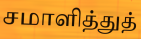
சமாளித்துத்